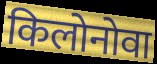
किलोनोवा